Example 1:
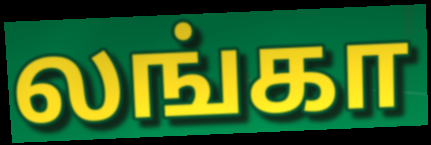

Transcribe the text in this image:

லங்கா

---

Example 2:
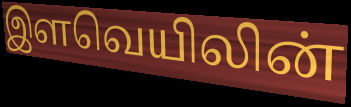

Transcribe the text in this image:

இளவெயிலின்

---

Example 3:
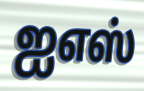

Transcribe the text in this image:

ஐஎஸ்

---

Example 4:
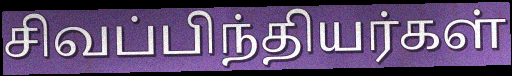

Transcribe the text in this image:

சிவப்பிந்தியர்கள்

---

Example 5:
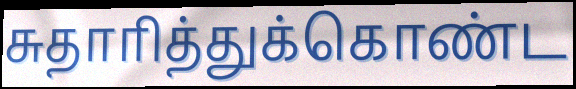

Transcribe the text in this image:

சுதாரித்துக்கொண்ட